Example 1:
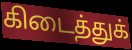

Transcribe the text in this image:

கிடைத்துக்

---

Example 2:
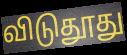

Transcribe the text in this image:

விடுதூது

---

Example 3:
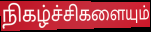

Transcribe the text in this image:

நிகழ்ச்சிகளையும்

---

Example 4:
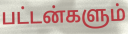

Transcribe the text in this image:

பட்டன்களும்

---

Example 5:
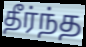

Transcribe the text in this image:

தீர்ந்த